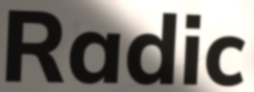
Radic